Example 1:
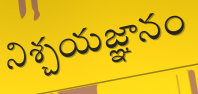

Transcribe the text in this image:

నిశ్చయజ్ఞానం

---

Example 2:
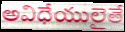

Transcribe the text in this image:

అవిధేయులైతే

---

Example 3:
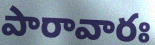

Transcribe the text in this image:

పారావారః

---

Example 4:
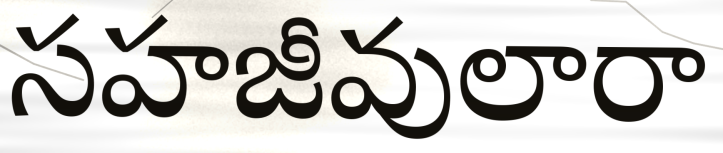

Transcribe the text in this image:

సహజీవులారా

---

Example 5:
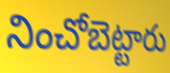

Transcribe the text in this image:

నించోబెట్టారు